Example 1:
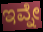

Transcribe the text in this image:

ಇವ್ನೇ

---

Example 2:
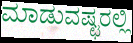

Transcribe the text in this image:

ಮಾಡುವಷ್ಟರಲ್ಲಿ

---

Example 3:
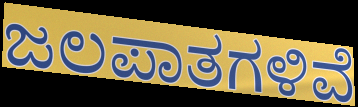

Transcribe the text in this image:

ಜಲಪಾತಗಳಿವೆ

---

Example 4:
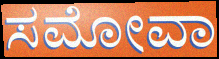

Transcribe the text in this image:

ಸಮೋವಾ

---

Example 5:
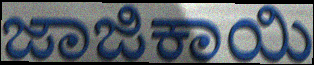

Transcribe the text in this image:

ಜಾಜಿಕಾಯಿ